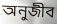
অনুজীব